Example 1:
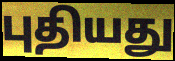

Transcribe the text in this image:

புதியது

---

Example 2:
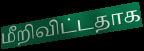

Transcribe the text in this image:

மீறிவிட்டதாக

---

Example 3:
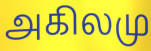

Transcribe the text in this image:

அகிலமு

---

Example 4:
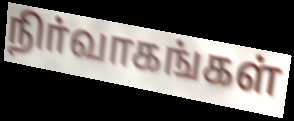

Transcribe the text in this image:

நிர்வாகங்கள்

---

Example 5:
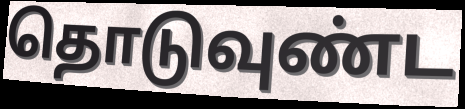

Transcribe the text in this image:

தொடுவுண்ட